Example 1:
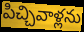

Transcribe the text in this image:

పిచ్చివాళ్లను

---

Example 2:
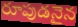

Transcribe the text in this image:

రూపుడనైన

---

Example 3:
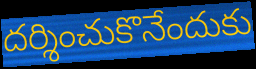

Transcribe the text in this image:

దర్శించుకొనేందుకు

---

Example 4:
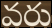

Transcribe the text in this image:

వరు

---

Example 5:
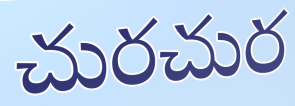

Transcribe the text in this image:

చురచుర